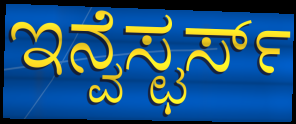
ಇನ್ವೆಸ್ಟರ್ಸ್